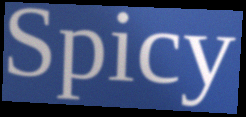
Spicy